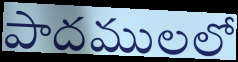
పాదములలో